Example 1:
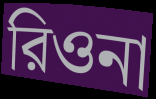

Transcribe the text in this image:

রিওনা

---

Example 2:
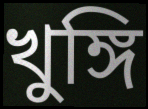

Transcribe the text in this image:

খুঙ্গি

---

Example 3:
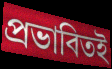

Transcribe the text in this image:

প্রভাবিতই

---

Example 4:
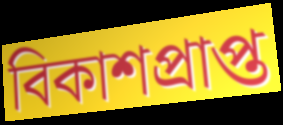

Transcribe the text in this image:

বিকাশপ্রাপ্ত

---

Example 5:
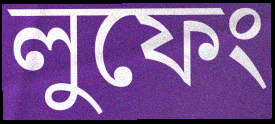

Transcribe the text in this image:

লুফেং